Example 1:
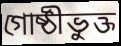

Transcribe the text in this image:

গোষ্ঠীভুক্ত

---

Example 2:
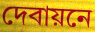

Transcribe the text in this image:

দেবায়নে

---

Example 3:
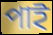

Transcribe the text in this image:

পাই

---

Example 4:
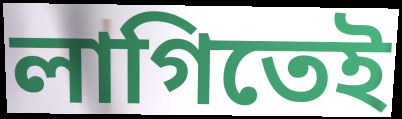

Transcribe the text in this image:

লাগিতেই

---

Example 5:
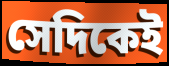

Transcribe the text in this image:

সেদিকেই